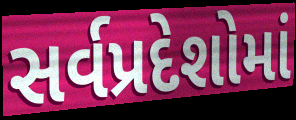
સર્વપ્રદેશોમાં